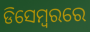
ଡିସେମ୍ବରରେ